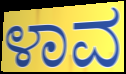
ಳಾವ